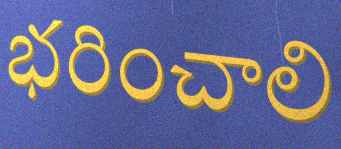
భరించాలి